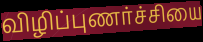
விழிப்புணர்ச்சியை